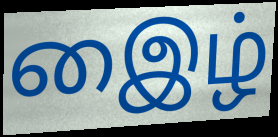
இைழ்